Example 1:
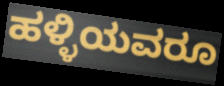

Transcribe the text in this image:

ಹಳ್ಳಿಯವರೂ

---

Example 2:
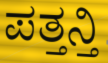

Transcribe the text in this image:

ಪತ್ತನ್ತಿ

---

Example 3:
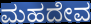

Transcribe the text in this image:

ಮಹದೇವ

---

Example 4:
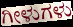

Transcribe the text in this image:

ಗೀಳುಗಳು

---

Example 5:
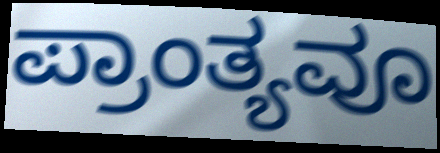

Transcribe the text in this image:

ಪ್ರಾಂತ್ಯವೂ